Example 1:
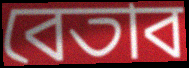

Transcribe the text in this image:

বেতাব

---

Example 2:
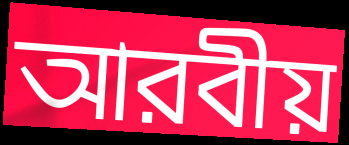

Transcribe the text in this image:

আরবীয়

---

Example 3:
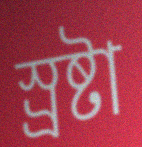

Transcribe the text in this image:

স্র্রষ্টা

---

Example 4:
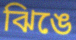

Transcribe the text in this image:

ঝিঙে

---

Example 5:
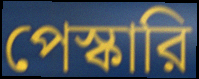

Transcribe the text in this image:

পেস্কারি